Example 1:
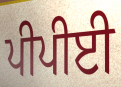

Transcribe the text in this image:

ਪੀਪੀਈ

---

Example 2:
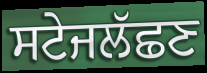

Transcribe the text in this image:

ਸਟੇਜਲੱਛਣ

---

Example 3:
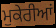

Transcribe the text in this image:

ਮੁਕੇਰੀਆਂ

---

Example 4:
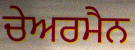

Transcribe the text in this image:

ਚੇਅਰਮੈਨ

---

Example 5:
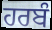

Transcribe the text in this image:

ਹਰਬੰ